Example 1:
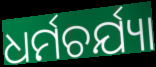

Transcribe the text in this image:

ଧର୍ମଚର୍ଯ୍ୟା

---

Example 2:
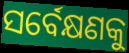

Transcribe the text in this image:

ସର୍ବେକ୍ଷଣକୁ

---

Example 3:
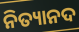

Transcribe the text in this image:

ନିତ୍ୟାନଦ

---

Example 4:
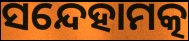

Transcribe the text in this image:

ସନ୍ଦେହାମତ୍କ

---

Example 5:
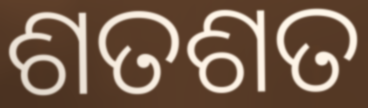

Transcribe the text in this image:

ଶତଶତ